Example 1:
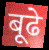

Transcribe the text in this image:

बूढे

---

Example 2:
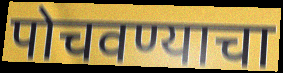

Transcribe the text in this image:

पोचवण्याचा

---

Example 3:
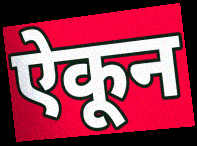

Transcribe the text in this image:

ऐकून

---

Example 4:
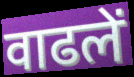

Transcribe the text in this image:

वाढलें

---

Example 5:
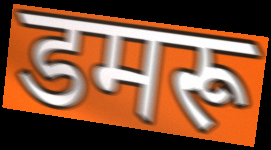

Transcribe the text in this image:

डमरू